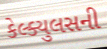
કેલ્ક્યુલસની